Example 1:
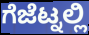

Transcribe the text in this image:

ಗೆಜೆಟ್ನಲ್ಲಿ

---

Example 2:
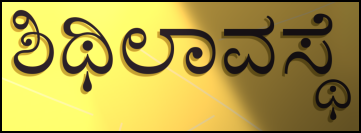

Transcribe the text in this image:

ಶಿಥಿಲಾವಸ್ಥೆ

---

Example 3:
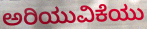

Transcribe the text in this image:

ಅರಿಯುವಿಕೆಯು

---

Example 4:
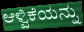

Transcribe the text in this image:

ಆಳ್ವಿಕೆಯನ್ನು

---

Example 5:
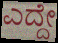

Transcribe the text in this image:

ಎದ್ದೇ